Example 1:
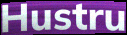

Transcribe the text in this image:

Hustru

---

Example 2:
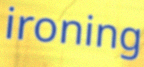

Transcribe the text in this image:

ironing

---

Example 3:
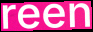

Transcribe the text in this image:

reen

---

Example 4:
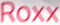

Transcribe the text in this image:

Roxx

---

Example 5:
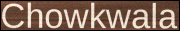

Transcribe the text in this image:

Chowkwala